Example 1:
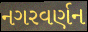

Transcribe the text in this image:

નગરવર્ણન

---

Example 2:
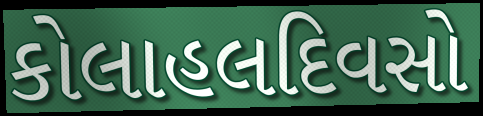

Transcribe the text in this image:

કોલાહલદિવસો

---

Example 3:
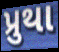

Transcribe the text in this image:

પ્રુથા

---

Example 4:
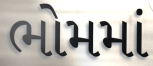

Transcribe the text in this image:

ભોમમાં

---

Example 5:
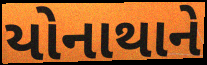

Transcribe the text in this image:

યોનાથાને